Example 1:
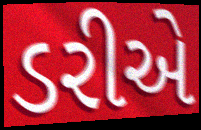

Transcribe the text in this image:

ડરીએ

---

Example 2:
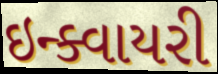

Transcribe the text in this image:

ઇન્ક્વાયરી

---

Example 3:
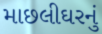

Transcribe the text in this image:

માછલીઘરનું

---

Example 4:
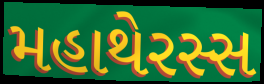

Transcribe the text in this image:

મહાથેરસ્સ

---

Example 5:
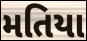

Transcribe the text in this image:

મતિયા